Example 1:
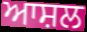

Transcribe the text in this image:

ਆਸ਼ਲ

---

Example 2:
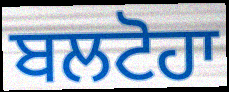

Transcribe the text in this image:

ਬਲਟੋਹਾ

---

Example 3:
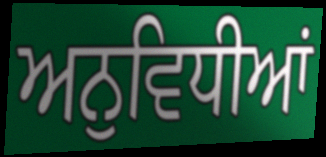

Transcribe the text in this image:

ਅਨੁਵਿਧੀਆਂ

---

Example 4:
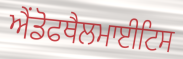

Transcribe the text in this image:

ਐਂਡੋਫਥੈਲਮਾਈਟਿਸ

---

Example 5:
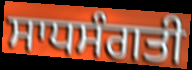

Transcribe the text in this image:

ਸਾਧਸੰਗਤੀ